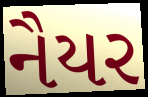
નૈયર